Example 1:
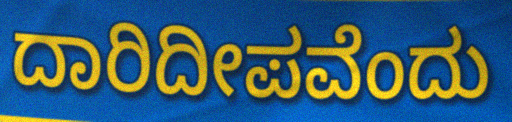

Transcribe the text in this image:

ದಾರಿದೀಪವೆಂದು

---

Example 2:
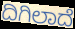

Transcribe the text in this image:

ದಿಗಿಲಾದೆ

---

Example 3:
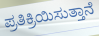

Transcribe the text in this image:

ಪ್ರತಿಕ್ರಿಯಿಸುತ್ತಾನೆ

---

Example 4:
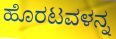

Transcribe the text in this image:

ಹೊರಟವಳನ್ನ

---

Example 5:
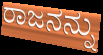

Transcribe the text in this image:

ರಾಜನನ್ನು